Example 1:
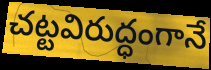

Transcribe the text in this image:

చట్టవిరుద్ధంగానే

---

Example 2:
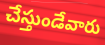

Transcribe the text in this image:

చేస్తుండేవారు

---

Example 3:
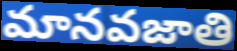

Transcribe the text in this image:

మానవజాతి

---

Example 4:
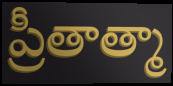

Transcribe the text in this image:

ప్రీతాత్మా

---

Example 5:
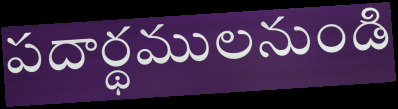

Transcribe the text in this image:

పదార్థములనుండి